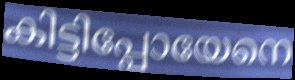
കിട്ടിപ്പോയേനെ